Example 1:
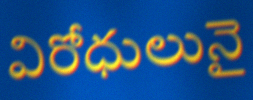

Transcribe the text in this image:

విరోధులునై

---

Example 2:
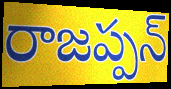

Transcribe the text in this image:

రాజప్పన్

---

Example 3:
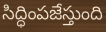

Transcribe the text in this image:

సిద్ధింపజేస్తుంది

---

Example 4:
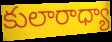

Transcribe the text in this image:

కులారాధ్యా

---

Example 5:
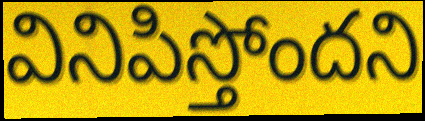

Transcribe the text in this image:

వినిపిస్తోందని